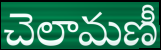
చెలామణీ